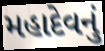
મહાદેવનું